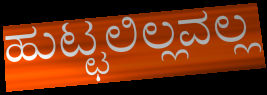
ಹುಟ್ಟಲಿಲ್ಲವಲ್ಲ